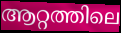
ആറ്റത്തിലെ